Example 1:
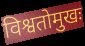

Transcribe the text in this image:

विश्वतोमुखः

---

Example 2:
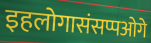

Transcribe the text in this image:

इहलोगासंसप्पओगे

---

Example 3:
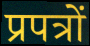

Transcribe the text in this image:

प्रपत्रों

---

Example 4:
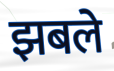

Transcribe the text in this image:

झबले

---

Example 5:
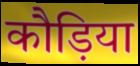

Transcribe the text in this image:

कौड़िया